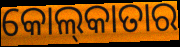
କୋଲ୍‍କାତାର